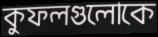
কুফলগুলোকে